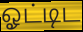
ஓட்டிட